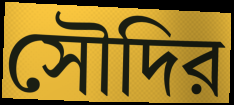
সৌদির